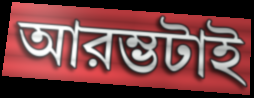
আরম্ভটাই